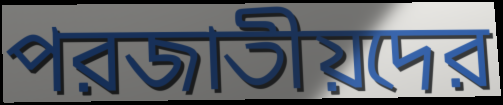
পরজাতীয়দের